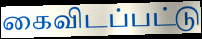
கைவிடப்பட்டு